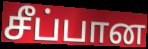
சீப்பான